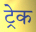
ट्रेक